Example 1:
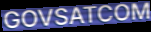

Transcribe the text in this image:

GOVSATCOM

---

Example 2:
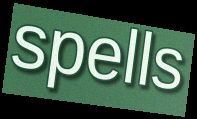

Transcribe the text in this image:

spells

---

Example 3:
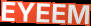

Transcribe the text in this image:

EYEEM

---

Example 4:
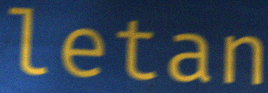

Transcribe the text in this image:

letan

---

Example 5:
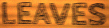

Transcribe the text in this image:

LEAVES